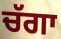
ਚੱਗਾ